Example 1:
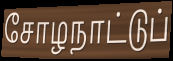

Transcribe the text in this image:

சோழநாட்டுப்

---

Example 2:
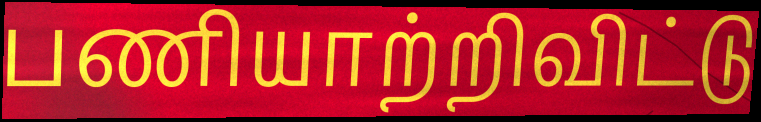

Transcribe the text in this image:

பணியாற்றிவிட்டு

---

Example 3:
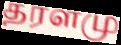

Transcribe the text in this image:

தரளமு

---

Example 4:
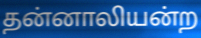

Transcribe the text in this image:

தன்னாலியன்ற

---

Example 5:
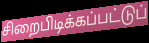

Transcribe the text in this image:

சிறைபிடிக்கப்பட்டுப்